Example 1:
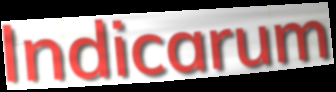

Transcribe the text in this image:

Indicarum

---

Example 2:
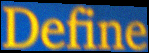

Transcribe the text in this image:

Define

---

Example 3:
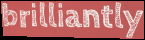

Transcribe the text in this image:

brilliantly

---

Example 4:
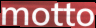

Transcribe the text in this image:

motto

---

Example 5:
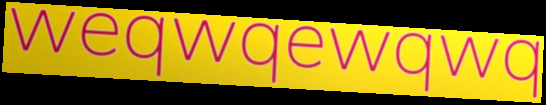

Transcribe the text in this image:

weqwqewqwq